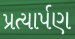
પ્રત્યાર્પણ